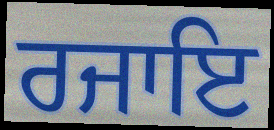
ਰਜਾਇ